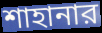
শাহানার